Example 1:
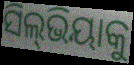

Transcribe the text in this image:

ସିଲ୍‍ଭିୟାକୁ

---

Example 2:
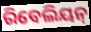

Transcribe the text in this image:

ରିବେଲିୟନ୍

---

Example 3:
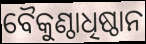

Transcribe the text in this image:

ବୈକୁଣ୍ଠାଧିଷ୍ଠାନ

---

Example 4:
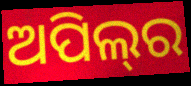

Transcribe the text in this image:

ଅପିଲ୍‌ର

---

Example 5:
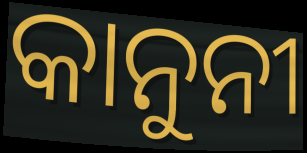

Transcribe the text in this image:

କାନୁନୀ